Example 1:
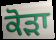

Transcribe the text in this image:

ਕੋੜਾ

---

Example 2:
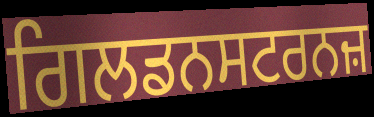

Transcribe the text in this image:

ਗਿਲਡਨਸਟਰਨਜ਼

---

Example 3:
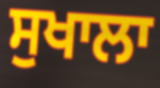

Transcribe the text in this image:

ਸੁਖਾਲਾ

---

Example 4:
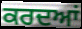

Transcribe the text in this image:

ਕਰਦਆਂ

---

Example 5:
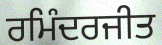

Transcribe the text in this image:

ਰਮਿੰਦਰਜੀਤ